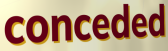
conceded